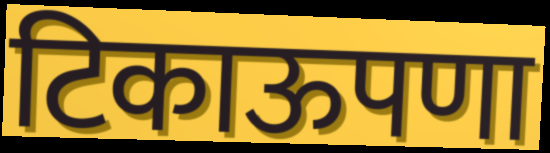
टिकाऊपणा